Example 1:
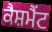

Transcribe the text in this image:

ਕੈਸ਼ਮੈਂਟ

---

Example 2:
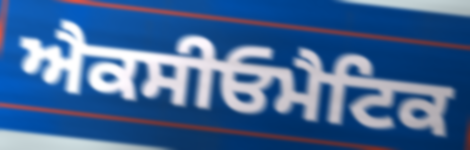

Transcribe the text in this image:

ਐਕਸੀਓਮੈਟਿਕ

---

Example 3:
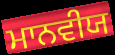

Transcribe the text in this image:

ਮਾਨਵੀਯ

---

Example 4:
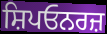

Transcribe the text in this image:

ਸ਼ਿਪਓਨਰਜ਼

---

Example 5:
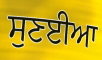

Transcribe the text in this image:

ਸੁਣਈਆ